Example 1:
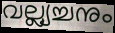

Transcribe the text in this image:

വല്ല്യച്ചനും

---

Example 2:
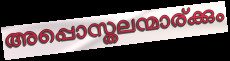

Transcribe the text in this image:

അപ്പൊസ്തലന്മാര്ക്കും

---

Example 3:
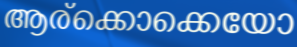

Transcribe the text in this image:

ആര്ക്കൊക്കെയോ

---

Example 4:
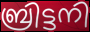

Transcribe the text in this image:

ബ്രിട്ടനി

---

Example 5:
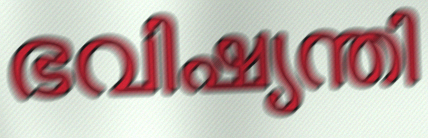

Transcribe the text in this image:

ഭവിഷ്യന്തി